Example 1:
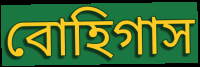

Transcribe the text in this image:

বোহিগাস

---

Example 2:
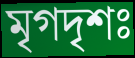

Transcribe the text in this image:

মৃগদৃশঃ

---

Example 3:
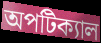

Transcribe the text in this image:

অপটিক্যাল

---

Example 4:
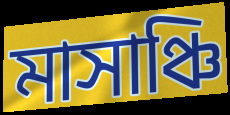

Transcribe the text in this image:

মাসাঞ্চি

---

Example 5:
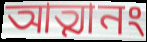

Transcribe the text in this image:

আত্মানং